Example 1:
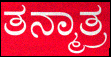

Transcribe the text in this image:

ತನ್ಮಾತ್ರ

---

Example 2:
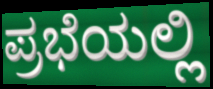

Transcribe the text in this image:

ಪ್ರಭೆಯಲ್ಲಿ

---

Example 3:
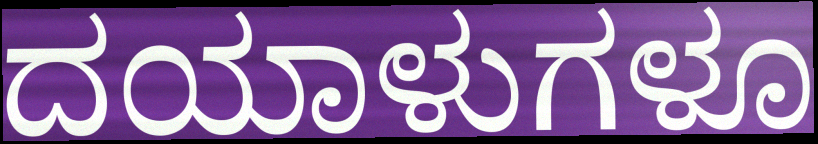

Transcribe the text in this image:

ದಯಾಳುಗಳೂ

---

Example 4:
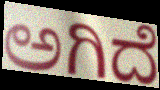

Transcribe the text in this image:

ಅಗಿದೆ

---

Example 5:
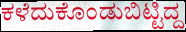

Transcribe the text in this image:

ಕಳೆದುಕೊಂಡುಬಿಟ್ಟಿದ್ದ